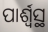
ପାର୍ଶ୍ବସ୍ଥ